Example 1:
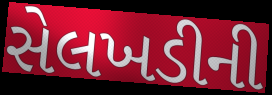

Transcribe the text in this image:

સેલખડીની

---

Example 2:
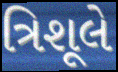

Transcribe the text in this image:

ત્રિશૂલે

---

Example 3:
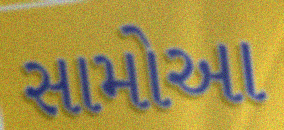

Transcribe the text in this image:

સામોઆ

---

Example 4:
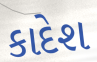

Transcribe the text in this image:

કાદેશ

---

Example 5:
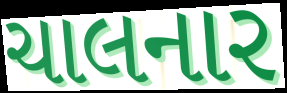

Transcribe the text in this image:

ચાલનાર